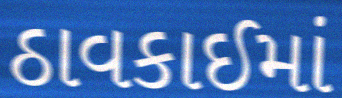
ઠાવકાઈમાં